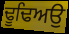
ਢੂਢਿਅਉ